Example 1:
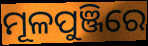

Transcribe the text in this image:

ମୂଳପୁଞ୍ଜିରେ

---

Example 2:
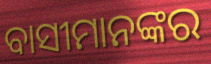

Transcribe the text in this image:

ବାସୀମାନଙ୍କର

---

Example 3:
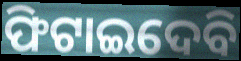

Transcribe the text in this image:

ଫିଟାଇଦେବି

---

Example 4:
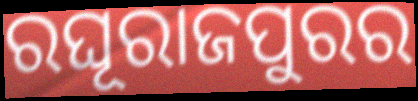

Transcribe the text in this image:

ରଘୂରାଜପୁରର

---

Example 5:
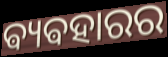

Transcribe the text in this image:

ଵ୍ୟଵହାରର